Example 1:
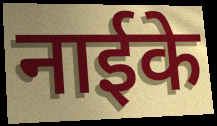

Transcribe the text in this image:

नाईके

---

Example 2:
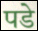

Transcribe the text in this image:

पडे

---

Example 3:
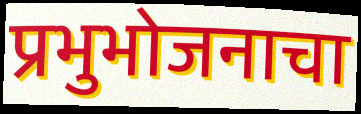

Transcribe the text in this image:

प्रभुभोजनाचा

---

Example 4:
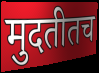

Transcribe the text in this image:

मुदतीतच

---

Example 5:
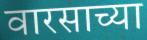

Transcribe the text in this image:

वारसाच्या